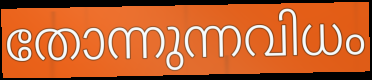
തോന്നുന്നവിധം